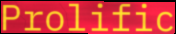
Prolific